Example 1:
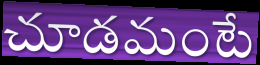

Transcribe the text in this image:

చూడమంటే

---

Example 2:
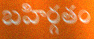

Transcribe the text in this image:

బహిర్గతం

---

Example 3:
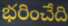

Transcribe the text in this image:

భరించేది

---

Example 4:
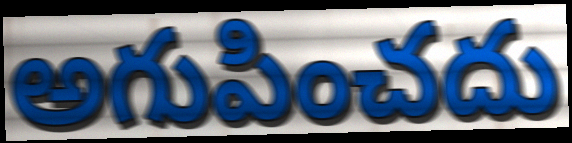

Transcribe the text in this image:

అగుపించదు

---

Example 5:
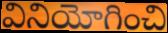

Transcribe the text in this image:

వినియోగించి